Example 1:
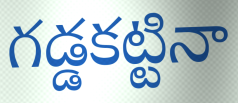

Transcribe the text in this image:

గడ్డకట్టినా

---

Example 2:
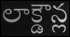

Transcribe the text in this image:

లాక్డౌన్ల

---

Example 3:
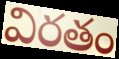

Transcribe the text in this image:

విరతం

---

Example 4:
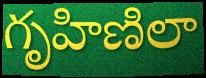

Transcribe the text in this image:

గృహిణిలా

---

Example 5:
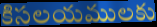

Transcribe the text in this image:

కిసలయములకు